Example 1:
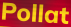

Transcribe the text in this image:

Pollat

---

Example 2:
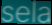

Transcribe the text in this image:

sela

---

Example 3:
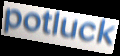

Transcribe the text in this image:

potluck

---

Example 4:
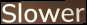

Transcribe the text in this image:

Slower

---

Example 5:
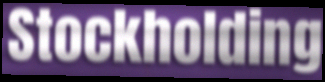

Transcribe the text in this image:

Stockholding